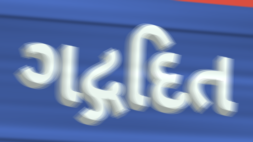
ગદ્ગદિત